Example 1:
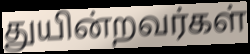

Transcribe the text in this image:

துயின்றவர்கள்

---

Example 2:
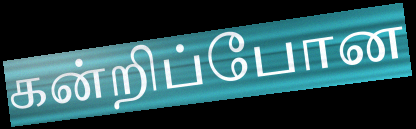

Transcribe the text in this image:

கன்றிப்போன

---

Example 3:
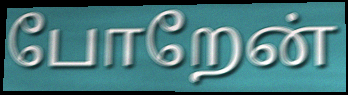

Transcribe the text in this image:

போறேன்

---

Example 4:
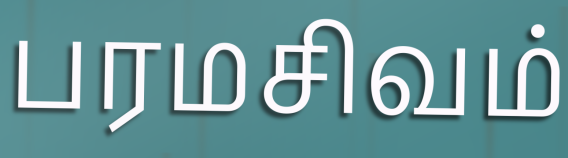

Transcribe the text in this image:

பரமசிவம்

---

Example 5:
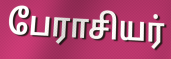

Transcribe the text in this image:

பேராசியர்